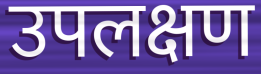
उपलक्षण